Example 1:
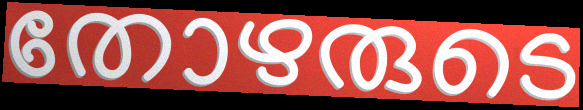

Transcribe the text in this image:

തോഴരുടെ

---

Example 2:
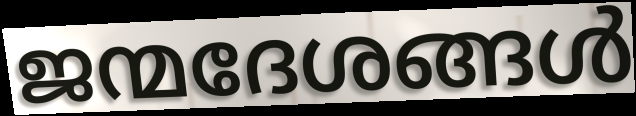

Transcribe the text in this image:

ജന്മദേശങ്ങൾ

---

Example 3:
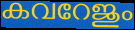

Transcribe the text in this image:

കവറേജും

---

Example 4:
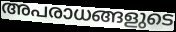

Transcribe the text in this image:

അപരാധങ്ങളുടെ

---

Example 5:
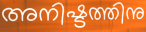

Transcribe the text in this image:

അനിഷ്ടത്തിനു